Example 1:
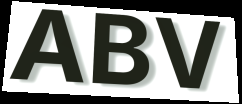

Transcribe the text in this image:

ABV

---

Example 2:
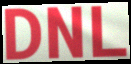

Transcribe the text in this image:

DNL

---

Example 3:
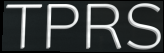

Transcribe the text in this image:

TPRS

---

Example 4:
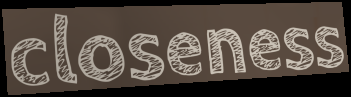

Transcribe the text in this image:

closeness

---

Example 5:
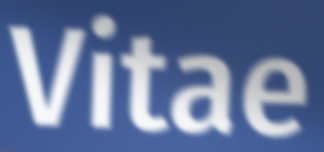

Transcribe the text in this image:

Vitae